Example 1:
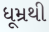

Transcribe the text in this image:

ધૂમ્રથી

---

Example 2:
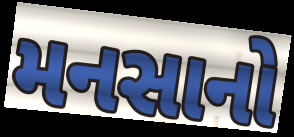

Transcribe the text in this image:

મનસાનો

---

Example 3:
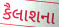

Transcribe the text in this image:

કૈલાશના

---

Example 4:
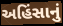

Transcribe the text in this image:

અહિંસાનું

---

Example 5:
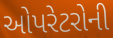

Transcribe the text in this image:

ઓપરેટરોની